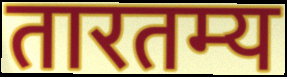
तारतम्य